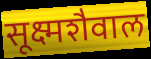
सूक्ष्मशैवाल